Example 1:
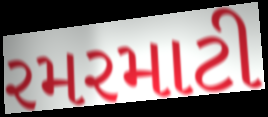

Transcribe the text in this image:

રમરમાટી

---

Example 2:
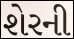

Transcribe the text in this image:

શેરની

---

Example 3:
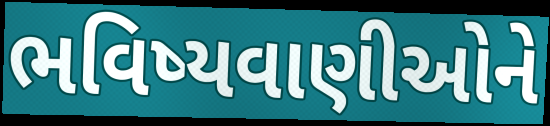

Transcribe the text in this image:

ભવિષ્યવાણીઓને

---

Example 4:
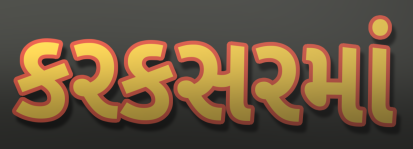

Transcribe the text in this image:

કરકસરમાં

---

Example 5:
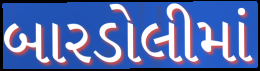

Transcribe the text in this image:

બારડોલીમાં